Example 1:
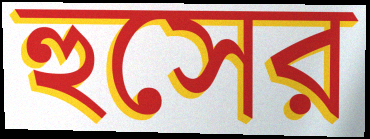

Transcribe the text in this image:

হুসের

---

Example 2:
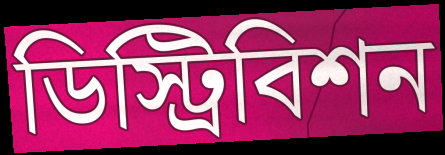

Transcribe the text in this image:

ডিস্ট্রিবিশন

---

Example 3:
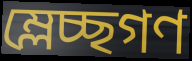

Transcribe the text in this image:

ম্লেচ্ছগণ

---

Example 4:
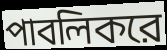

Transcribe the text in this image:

পাবলিকরে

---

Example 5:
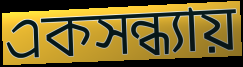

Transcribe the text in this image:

একসন্ধ্যায়